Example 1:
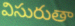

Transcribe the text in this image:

విసురుతా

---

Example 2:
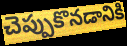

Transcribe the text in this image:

చెప్పుకొనడానికి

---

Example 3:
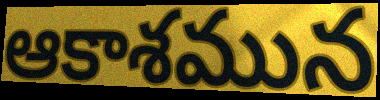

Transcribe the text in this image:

ఆకాశమున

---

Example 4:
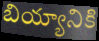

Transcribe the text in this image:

బియ్యానికి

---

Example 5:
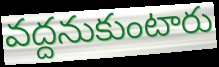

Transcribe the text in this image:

వద్దనుకుంటారు